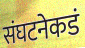
संघटनेकडं